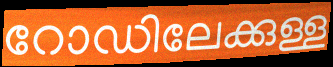
റോഡിലേക്കുള്ള